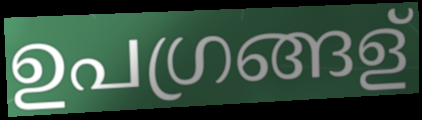
ഉപഗ്രങ്ങള്